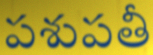
పశుపతీ